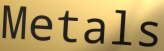
Metals